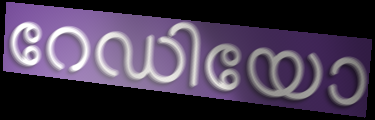
റേഡിയോ